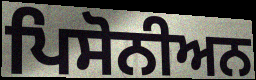
ਪਿਸੋਨੀਅਨ